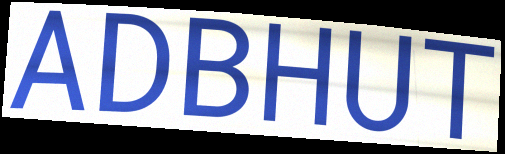
ADBHUT